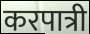
करपात्री